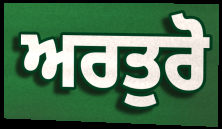
ਅਰਤੁਰੋ